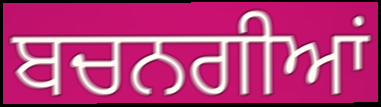
ਬਚਨਗੀਆਂ